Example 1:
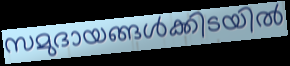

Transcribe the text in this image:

സമുദായങ്ങൾക്കിടയിൽ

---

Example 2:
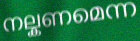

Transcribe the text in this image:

നല്കണമെന്ന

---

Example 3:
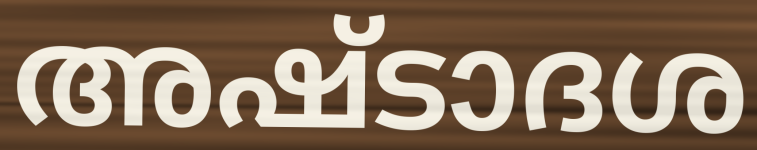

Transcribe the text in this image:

അഷ്ടാദശ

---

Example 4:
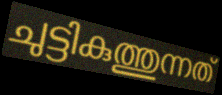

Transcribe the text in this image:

ചുട്ടികുത്തുന്നത്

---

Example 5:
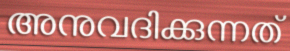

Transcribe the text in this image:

അനുവദിക്കുന്നത്